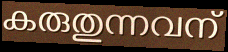
കരുതുന്നവന്